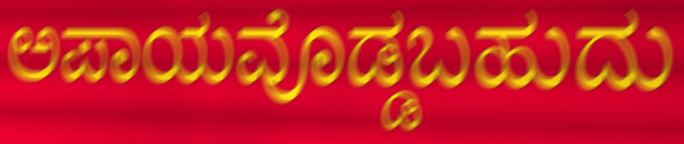
ಅಪಾಯವೊಡ್ಡಬಹುದು